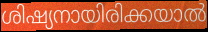
ശിഷ്യനായിരിക്കയാൽ